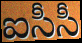
ఐసీసీ